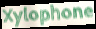
Xylophone